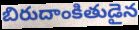
బిరుదాంకితుడైన